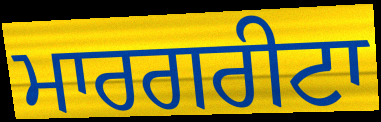
ਮਾਰਗਰੀਟਾ